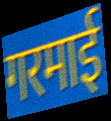
गरमाई